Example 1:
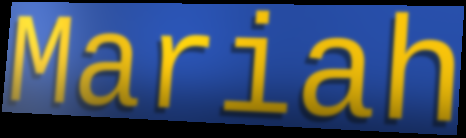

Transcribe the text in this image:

Mariah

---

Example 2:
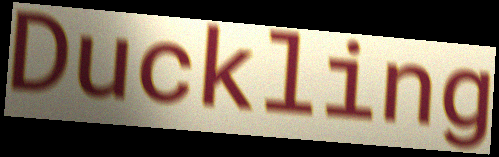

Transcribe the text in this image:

Duckling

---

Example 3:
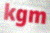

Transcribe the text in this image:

kgm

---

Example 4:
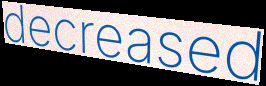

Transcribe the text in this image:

decreased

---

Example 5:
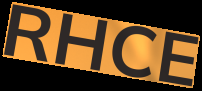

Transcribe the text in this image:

RHCE